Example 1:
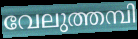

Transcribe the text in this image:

വേലുത്തമ്പി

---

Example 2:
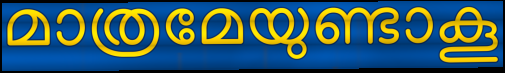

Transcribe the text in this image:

മാത്രമേയുണ്ടാകൂ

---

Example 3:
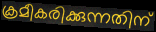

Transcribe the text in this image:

ക്രമീകരിക്കുന്നതിന്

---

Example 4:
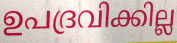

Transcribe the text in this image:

ഉപദ്രവിക്കില്ല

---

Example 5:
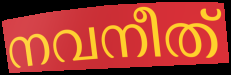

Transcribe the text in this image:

നവനീത്